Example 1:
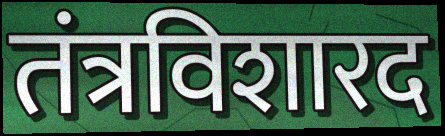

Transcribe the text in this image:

तंत्रविशारद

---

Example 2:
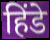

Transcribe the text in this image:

हिंडे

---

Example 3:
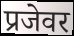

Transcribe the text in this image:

प्रजेवर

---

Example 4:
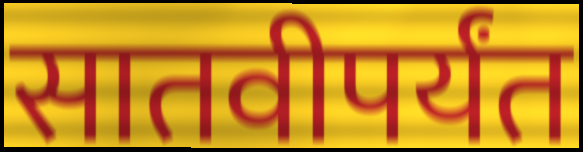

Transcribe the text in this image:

सातवीपर्यंत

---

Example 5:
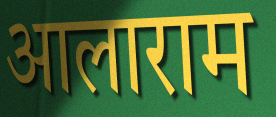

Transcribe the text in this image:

आलाराम